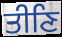
ਤੀਣਿ